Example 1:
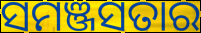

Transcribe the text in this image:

ସମଞ୍ଜସତାର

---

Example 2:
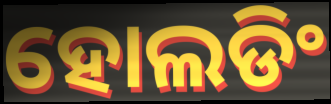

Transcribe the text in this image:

ହୋଲଡିଂ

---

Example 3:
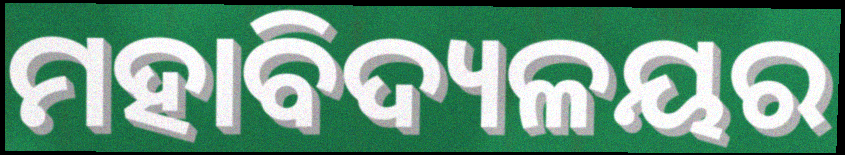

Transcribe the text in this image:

ମହାବିଦ୍ୟଳୟର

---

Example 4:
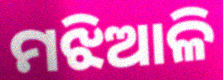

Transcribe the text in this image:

ମଝିଆଳି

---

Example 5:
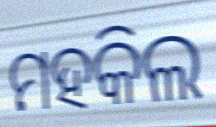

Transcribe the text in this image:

ମହକିଲ